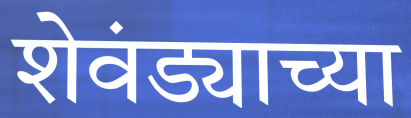
शेवंड्याच्या